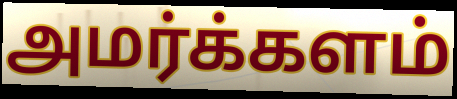
அமர்க்களம்